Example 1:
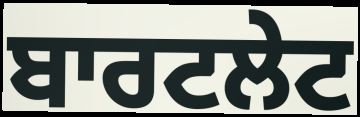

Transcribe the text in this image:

ਬਾਰਟਲੇਟ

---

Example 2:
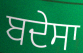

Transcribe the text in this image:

ਬਦੇਸਾ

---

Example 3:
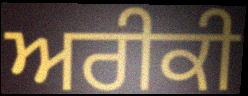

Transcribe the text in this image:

ਅਰੀਕੀ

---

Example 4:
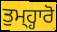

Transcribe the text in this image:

ਤੁਮ੍ਹ੍ਹਾਰੋ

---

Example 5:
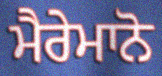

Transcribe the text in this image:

ਮੈਰੇਮਾਨੋ